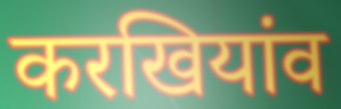
करखियांव